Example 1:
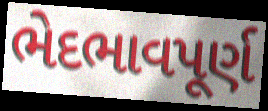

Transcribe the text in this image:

ભેદભાવપૂર્ણ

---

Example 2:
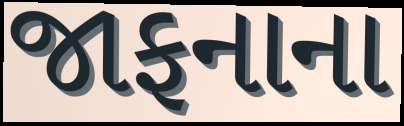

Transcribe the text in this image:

જાફનાના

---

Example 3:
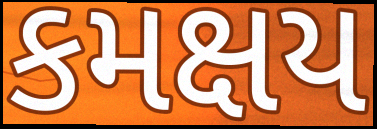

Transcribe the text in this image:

કમક્ષય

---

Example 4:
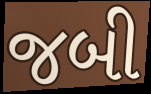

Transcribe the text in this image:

જબી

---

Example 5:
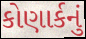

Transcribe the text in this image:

કોણાર્કનું